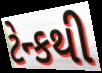
ટેન્કથી